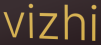
vizhi